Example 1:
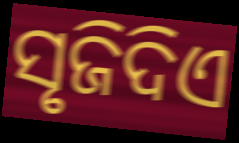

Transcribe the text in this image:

ସୃଜିଦିଏ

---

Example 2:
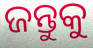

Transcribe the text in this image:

ଜନ୍ତୁକୁ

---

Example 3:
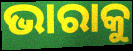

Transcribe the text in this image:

ଭାରାକୁ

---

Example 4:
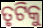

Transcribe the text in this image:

ତୃଟିକୁ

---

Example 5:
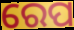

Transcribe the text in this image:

ରେପ